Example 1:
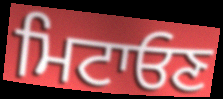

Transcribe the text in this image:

ਮਿਟਾਓਣ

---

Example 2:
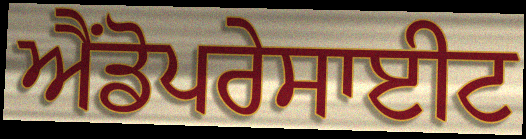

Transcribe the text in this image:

ਐਂਡੋਪਰੇਸਾਈਟ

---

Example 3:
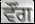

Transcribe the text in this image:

ਵੌਂਗ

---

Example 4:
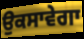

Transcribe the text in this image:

ਉਕਸਾਵੇਗਾ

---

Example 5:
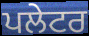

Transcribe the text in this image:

ਪਲੇਟਰ